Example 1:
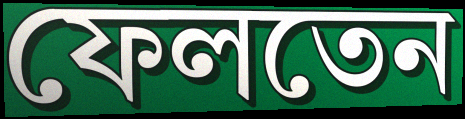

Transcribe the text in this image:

ফেলতেন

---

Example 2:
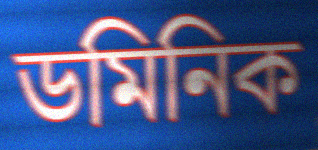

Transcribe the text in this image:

ডমিনিক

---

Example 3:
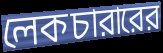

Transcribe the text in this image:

লেকচারারের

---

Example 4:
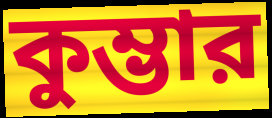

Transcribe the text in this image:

কুম্ভার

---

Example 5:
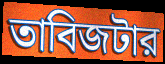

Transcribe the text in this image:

তাবিজটার